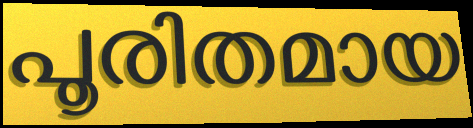
പൂരിതമായ